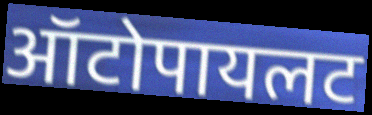
ऑटोपायलट